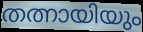
തത്നായിയും